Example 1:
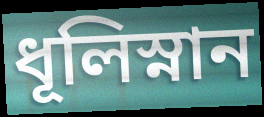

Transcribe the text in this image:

ধূলিস্নান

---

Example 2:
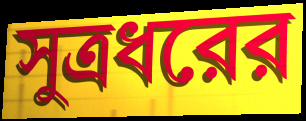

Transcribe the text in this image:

সুত্রধরের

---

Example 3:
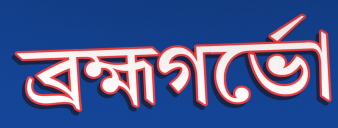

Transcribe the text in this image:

ব্রহ্মগর্ভো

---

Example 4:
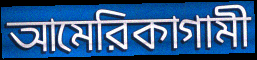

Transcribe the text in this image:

আমেরিকাগামী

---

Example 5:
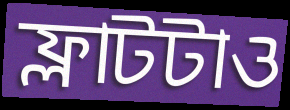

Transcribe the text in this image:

ফ্লাটটাও